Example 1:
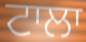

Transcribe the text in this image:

ਟਾਲਾ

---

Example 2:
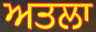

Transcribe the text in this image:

ਅਤਲਾ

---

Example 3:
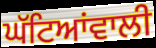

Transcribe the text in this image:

ਘੱਟਿਆਂਵਾਲੀ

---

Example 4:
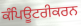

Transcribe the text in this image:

ਕੰਪਿਊਟਰੀਕਰਨ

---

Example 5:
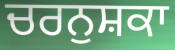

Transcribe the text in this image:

ਚਰਨੁਸ਼ਕਾ